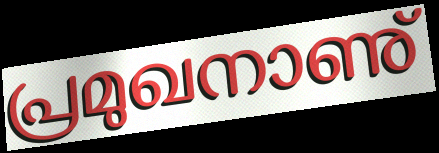
പ്രമുഖനാണു്